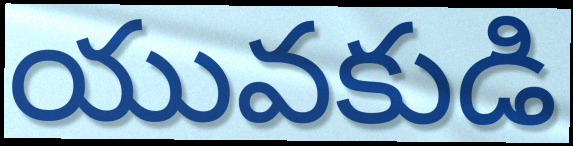
యువకుడి